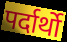
पर्दार्थो